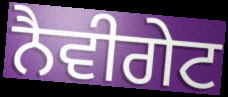
ਨੈਵੀਗੇਟ